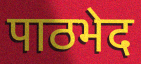
पाठभेद